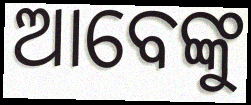
ଆବେଙ୍କୁ